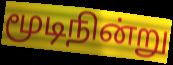
மூடிநின்று